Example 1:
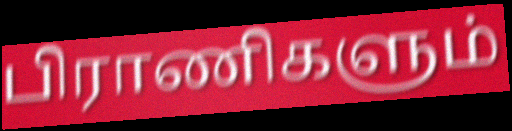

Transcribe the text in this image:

பிராணிகளும்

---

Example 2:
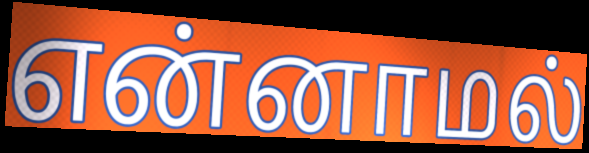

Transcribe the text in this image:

என்னாமல்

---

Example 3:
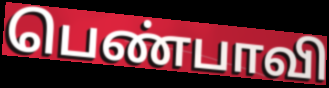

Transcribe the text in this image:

பெண்பாவி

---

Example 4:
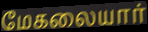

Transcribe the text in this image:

மேகலையார்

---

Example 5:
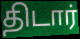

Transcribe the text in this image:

திடார்